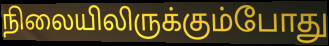
நிலையிலிருக்கும்போது